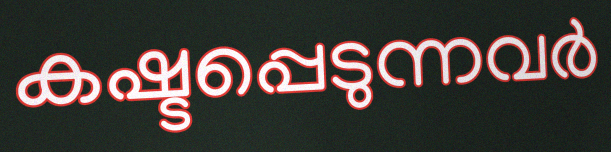
കഷ്ടപ്പെടുന്നവർ